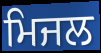
ਮਿਜਲ